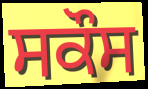
ਸਕੌਸ